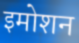
इमोशन